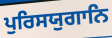
ਪੁਰਿਸਯੁਗਾਨਿ